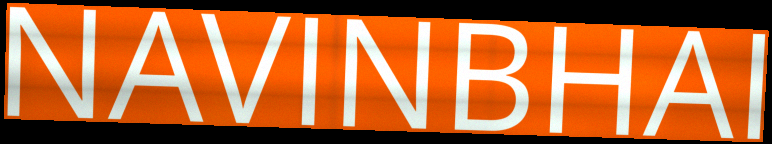
NAVINBHAI